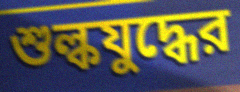
শুল্কযুদ্ধের